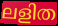
ലളിത